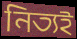
নিত্যই